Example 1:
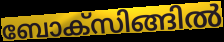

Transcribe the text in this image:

ബോക്സിങ്ങിൽ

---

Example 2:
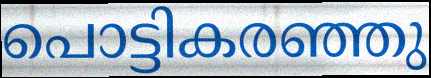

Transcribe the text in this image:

പൊട്ടികരഞ്ഞു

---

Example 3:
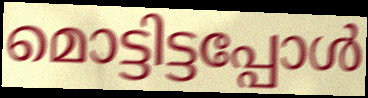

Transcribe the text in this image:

മൊട്ടിട്ടപ്പോൾ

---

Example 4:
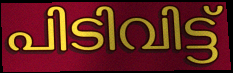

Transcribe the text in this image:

പിടിവിട്ട്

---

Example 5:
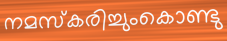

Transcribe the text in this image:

നമസ്കരിച്ചുംകൊണ്ടു